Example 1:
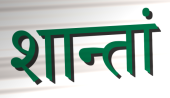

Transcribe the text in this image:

शान्तां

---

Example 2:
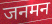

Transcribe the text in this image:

जनमन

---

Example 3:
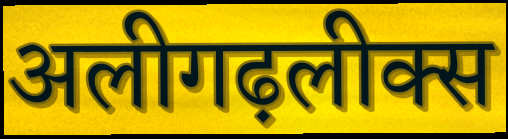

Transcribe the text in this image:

अलीगढ़लीक्स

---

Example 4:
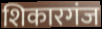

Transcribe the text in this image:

शिकारगंज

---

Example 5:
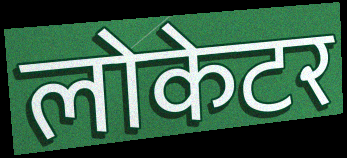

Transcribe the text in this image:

लोकेटर